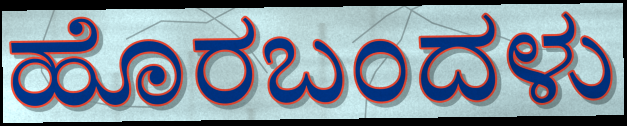
ಹೊರಬಂದಳು